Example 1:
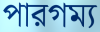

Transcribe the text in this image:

পারগম্য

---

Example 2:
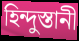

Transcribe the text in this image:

হিন্দুস্তানী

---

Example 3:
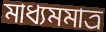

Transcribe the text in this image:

মাধ্যমমাত্র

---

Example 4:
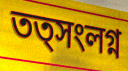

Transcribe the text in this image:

তত্সংলগ্ন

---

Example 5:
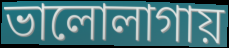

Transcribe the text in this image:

ভালোলাগায়